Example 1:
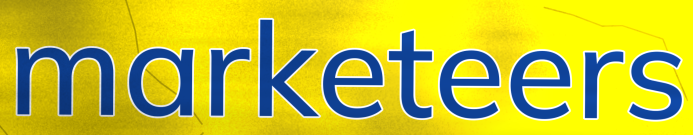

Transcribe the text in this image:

marketeers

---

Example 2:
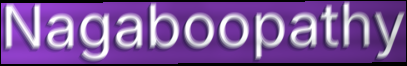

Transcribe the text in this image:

Nagaboopathy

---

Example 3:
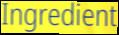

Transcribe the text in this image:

Ingredient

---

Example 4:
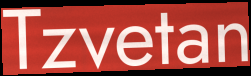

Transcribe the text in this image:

Tzvetan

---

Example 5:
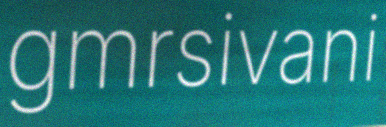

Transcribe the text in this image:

gmrsivani